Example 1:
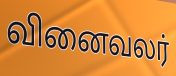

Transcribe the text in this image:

வினைவலர்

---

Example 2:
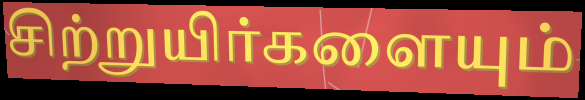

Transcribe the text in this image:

சிற்றுயிர்களையும்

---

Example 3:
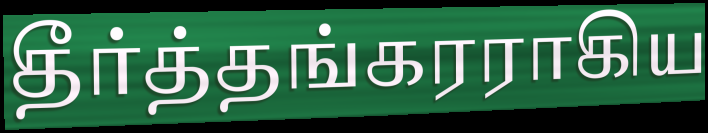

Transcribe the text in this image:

தீர்த்தங்கரராகிய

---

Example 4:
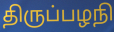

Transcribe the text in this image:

திருப்பழநி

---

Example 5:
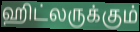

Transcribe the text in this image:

ஹிட்லருக்கும்